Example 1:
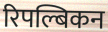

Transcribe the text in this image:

रिपल्बिकन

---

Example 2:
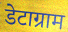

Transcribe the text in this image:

डेटाग्राम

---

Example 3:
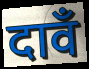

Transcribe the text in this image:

दावँ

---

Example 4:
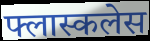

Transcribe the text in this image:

फ्लास्कलेस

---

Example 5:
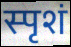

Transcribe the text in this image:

स्पृशं